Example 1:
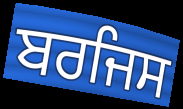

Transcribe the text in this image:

ਬਰਜਿਸ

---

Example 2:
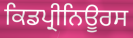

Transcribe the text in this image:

ਕਿਡਪ੍ਰੀਨਿਊਰਸ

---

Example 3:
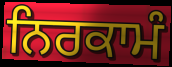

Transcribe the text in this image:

ਨਿਰਕਾਮੰ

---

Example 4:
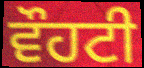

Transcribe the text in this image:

ਵੌਹਟੀ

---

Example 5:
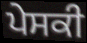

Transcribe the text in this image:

ਪੇਸਕੀ